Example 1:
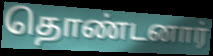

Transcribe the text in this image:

தொண்டனார்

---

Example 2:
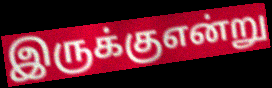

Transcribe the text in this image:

இருக்குஎன்று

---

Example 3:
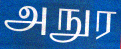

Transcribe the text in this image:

அநுர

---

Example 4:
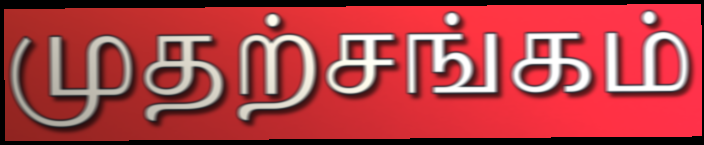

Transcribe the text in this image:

முதற்சங்கம்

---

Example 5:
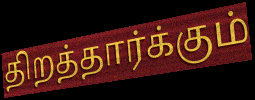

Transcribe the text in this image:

திறத்தார்க்கும்